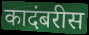
कादंबरीस